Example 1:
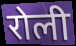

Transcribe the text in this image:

रोली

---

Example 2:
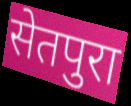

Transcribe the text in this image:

सेतपुरा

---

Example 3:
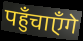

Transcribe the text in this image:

पहुँचाएँगे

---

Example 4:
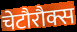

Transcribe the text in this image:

चेटौरौक्स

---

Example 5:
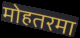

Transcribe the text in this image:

मोहतरमा